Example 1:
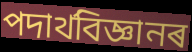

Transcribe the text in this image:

পদাৰ্থবিজ্ঞানৰ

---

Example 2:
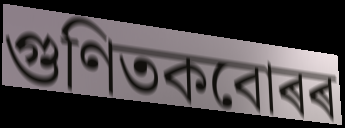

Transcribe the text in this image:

গুণিতকবোৰৰ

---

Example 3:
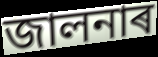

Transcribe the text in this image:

জালনাৰ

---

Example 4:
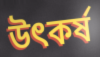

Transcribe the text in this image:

উৎকৰ্ষ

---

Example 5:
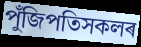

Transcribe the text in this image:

পুঁজিপতিসকলৰ